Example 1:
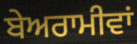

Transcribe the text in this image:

ਬੇਅਰਾਮੀਵਾਂ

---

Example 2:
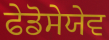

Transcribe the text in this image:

ਫੇਡੋਸੇਯੇਵ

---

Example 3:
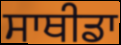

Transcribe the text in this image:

ਸਾਥੀਡਾ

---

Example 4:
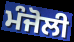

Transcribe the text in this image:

ਮੰਜੋਲੀ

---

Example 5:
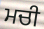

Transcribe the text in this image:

ਮਚੀ